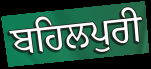
ਬਹਿਲਪੁਰੀ